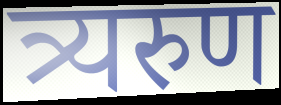
त्र्यरुण